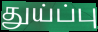
துய்ப்பு